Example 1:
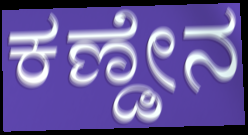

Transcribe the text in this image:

ಕಣ್ಡೇನ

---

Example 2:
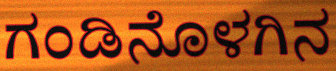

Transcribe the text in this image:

ಗಂಡಿನೊಳಗಿನ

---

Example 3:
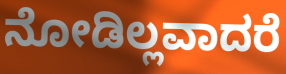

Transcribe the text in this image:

ನೋಡಿಲ್ಲವಾದರೆ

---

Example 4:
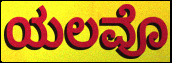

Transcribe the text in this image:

ಯಲವೊ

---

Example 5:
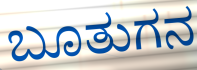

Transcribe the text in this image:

ಬೂತುಗನ